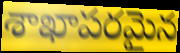
శాఖాపరమైన